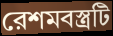
রেশমবস্ত্রটি